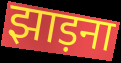
झाड़ना